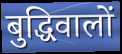
बुद्धिवालों